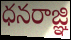
ధనరాజ్ఞి